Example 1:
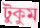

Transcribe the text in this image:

টুকুম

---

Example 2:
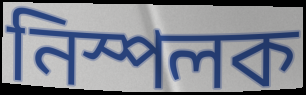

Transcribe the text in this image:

নিস্পলক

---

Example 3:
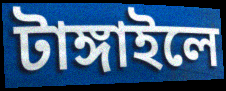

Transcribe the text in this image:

টাঙ্গাইলে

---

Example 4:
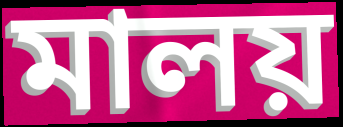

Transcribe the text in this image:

মালয়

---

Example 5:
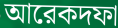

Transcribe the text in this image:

আরেকদফা